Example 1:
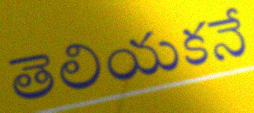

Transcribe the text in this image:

తెలియకనే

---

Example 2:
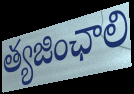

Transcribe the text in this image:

త్యజింఛాలి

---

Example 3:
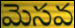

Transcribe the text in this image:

మెసవ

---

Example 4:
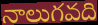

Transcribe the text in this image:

నాలుగవది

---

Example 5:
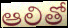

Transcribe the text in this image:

ఆలితో